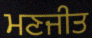
ਮਣਜੀਤ